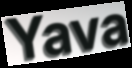
Yava